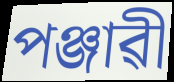
পঞ্জাৱী